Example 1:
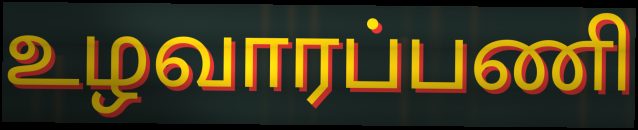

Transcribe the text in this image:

உழவாரப்பணி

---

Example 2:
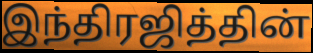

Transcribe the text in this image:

இந்திரஜித்தின்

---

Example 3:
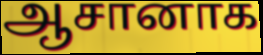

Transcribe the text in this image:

ஆசானாக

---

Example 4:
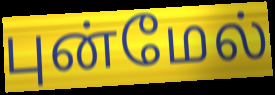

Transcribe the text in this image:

புன்மேல்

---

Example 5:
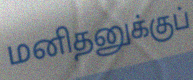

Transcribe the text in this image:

மனிதனுக்குப்